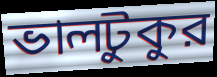
ভালটুকুর